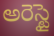
అరెస్టై